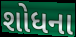
શોધના